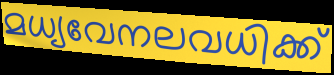
മധ്യവേനലവധിക്ക്